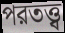
পরতত্ত্ব